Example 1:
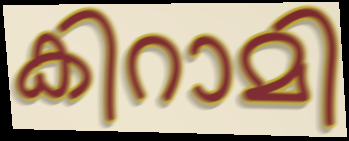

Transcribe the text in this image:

കിറാമി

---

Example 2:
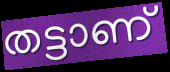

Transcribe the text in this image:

തട്ടാണ്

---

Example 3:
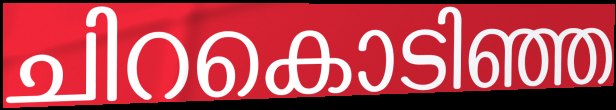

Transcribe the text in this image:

ചിറകൊടിഞ്ഞ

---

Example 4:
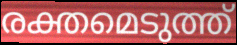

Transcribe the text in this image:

രക്തമെടുത്ത്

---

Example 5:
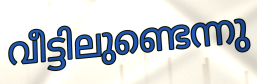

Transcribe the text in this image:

വീട്ടിലുണ്ടെന്നു